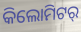
କିଲୋମିଟର୍